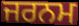
ਜਰਨਮ